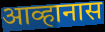
आव्हानास